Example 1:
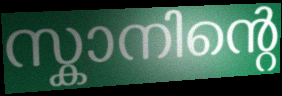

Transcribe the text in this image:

സ്കാനിന്റെ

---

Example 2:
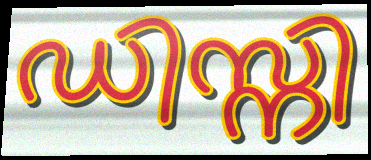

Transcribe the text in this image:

ഡിസ്നി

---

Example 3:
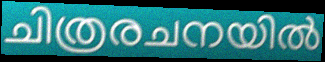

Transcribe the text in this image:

ചിത്രരചനയിൽ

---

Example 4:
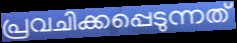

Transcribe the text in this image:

പ്രവചിക്കപ്പെടുന്നത്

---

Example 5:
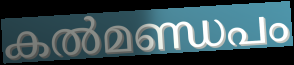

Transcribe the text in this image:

കൽമണ്ഡപം